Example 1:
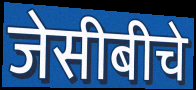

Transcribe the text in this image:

जेसीबीचे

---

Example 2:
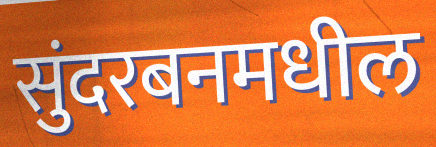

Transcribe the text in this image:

सुंदरबनमधील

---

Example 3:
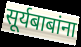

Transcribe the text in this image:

सूर्यबाबांना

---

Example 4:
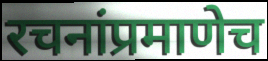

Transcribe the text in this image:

रचनांप्रमाणेच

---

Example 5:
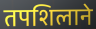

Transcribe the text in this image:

तपशिलाने